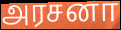
அரசனா